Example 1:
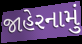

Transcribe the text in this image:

જાહેરનામું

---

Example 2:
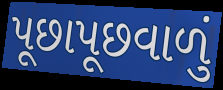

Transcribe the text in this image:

પૂછાપૂછવાળું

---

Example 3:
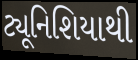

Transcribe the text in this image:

ટ્યૂનિશિયાથી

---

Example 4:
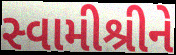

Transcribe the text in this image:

સ્વામીશ્રીને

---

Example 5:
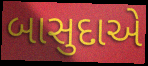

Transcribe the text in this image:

બાસુદાએ